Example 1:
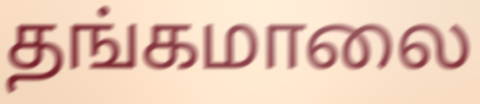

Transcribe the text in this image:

தங்கமாலை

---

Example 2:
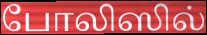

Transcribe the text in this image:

போலிஸில்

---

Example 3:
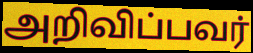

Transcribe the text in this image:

அறிவிப்பவர்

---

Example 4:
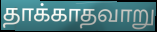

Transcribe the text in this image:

தாக்காதவாறு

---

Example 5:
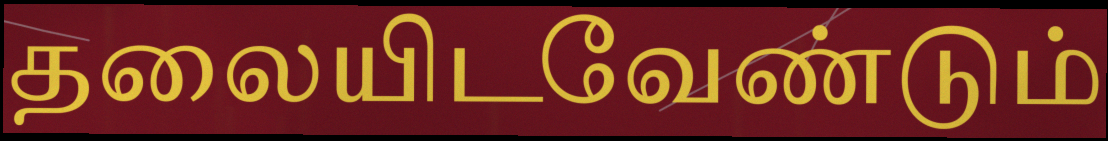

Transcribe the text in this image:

தலையிடவேண்டும்